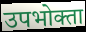
उपभोक्‍ता